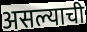
असल्याची